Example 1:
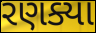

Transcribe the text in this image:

રણક્યા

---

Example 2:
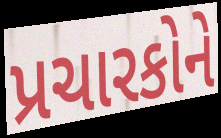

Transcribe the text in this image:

પ્રચારકોને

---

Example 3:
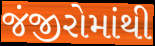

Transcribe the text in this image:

જંજીરોમાંથી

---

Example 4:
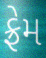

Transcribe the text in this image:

ફ્રેમ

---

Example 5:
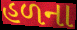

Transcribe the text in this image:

હળના